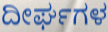
ದೀರ್ಘಗಳ